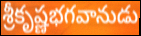
శ్రీకృష్ణభగవానుడు